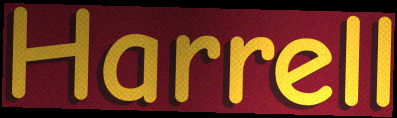
Harrell